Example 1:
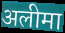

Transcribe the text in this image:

अलीमा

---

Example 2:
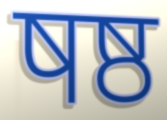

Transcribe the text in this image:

षष्ठ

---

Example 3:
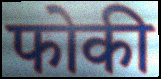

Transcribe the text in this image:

फोकी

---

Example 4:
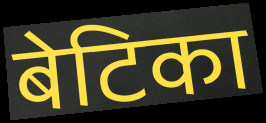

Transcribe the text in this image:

बेटिका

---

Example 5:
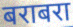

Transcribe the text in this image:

बराबरा